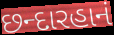
છન્દારહાનં